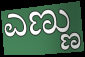
ಎಣ್ಣು